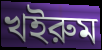
খইরুম